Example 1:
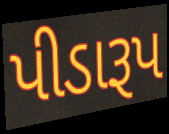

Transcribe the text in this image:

પીડારૂપ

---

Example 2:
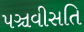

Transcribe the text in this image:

પઞ્ચવીસતિ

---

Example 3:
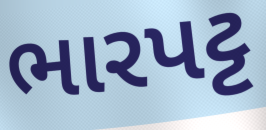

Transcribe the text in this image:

ભારપટ્ટ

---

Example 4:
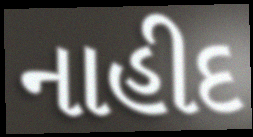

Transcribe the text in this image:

નાહીદ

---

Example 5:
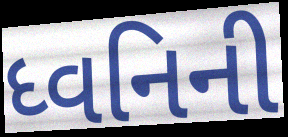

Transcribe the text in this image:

ધ્વનિની